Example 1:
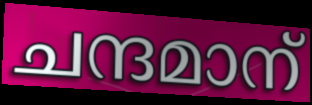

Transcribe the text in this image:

ചന്ദമാന്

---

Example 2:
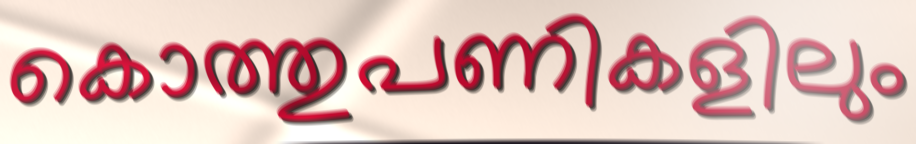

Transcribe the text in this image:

കൊത്തുപണികളിലും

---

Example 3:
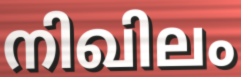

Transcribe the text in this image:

നിഖിലം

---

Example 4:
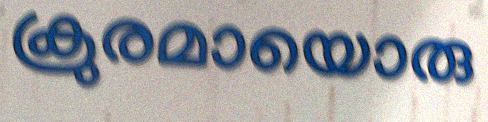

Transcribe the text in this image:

ക്രുരമായൊരു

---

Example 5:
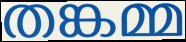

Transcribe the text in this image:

തങ്കമ്മ